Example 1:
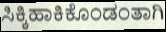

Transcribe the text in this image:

ಸಿಕ್ಕಿಹಾಕಿಕೊಂಡಂತಾಗಿ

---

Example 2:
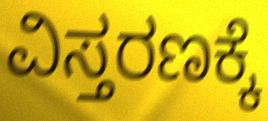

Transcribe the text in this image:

ವಿಸ್ತರಣಕ್ಕೆ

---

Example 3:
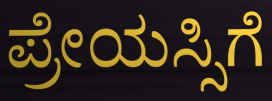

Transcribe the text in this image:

ಪ್ರೇಯಸ್ಸಿಗೆ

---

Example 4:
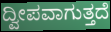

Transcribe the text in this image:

ದ್ವೀಪವಾಗುತ್ತದೆ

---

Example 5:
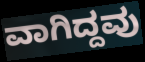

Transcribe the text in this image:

ವಾಗಿದ್ದವು